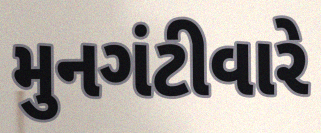
મુનગંટીવારે